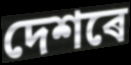
দেশৰে